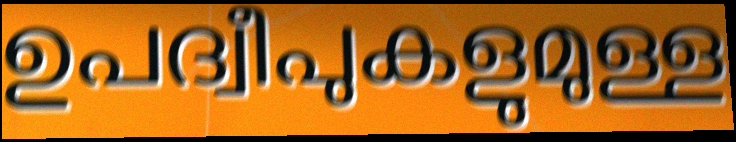
ഉപദ്വീപുകളുമുള്ള